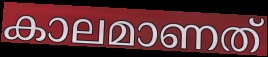
കാലമാണത്